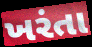
ખરંતા